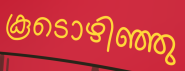
കൂടൊഴിഞ്ഞു